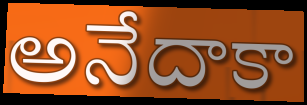
అనేదాకా